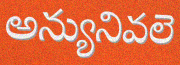
అన్యునివలె